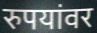
रुपयांवर